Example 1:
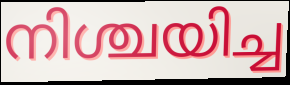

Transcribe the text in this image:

നിശ്ചയിച്ച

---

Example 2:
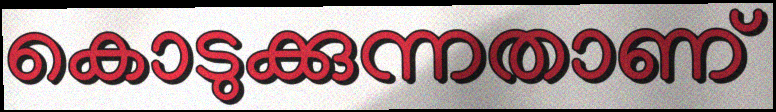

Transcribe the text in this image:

കൊടുക്കുന്നതാണ്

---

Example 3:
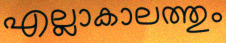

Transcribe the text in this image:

എല്ലാകാലത്തും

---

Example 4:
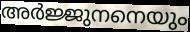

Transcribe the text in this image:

അർജ്ജുനനെയും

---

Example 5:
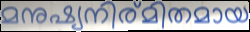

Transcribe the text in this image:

മനുഷ്യനിര്മിതമായ